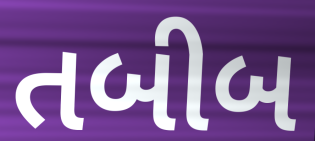
તબીબ